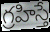
గ్రహిస్తే